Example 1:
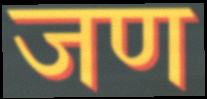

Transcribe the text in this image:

जण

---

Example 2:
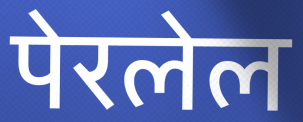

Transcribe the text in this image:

पेरलेल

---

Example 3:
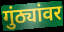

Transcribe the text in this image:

गुंठ्यांवर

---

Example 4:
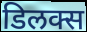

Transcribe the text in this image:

डिलक्स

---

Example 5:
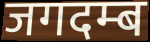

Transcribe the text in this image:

जगदम्ब